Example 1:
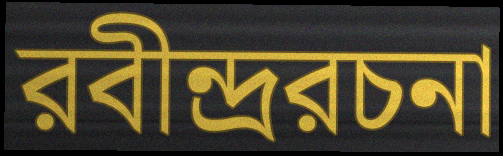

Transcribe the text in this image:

রবীন্দ্ররচনা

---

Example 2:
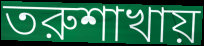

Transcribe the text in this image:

তরুশাখায়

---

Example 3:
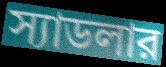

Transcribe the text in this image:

স্যাডলার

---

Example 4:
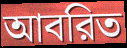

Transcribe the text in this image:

আবরিত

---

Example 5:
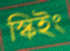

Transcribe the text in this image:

স্কিইং